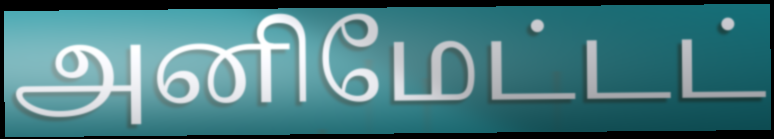
அனிமேட்டட்